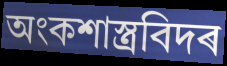
অংকশাস্ত্ৰবিদৰ